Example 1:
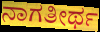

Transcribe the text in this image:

ನಾಗತೀರ್ಥ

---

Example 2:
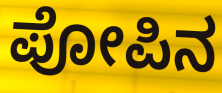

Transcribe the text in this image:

ಪೋಪಿನ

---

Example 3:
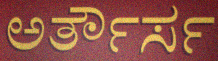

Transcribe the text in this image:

ಅರ್ತೌರ್ಸ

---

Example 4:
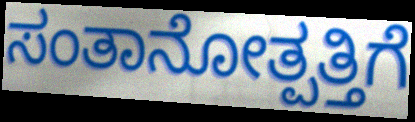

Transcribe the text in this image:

ಸಂತಾನೋತ್ಪತ್ತಿಗೆ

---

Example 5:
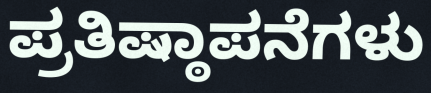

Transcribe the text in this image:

ಪ್ರತಿಷ್ಠಾಪನೆಗಳು